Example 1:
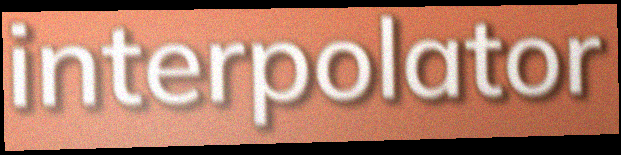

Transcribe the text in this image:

interpolator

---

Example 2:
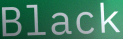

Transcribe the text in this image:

Black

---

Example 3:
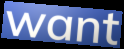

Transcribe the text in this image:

want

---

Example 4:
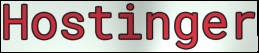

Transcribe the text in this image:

Hostinger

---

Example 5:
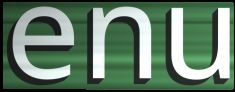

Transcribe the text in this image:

enu